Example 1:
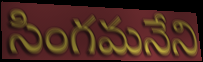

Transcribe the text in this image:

సింగమనేని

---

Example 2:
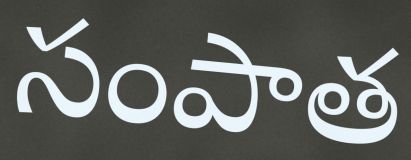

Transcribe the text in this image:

సంపాత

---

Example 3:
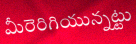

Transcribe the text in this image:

మీరెరిగియున్నట్టు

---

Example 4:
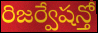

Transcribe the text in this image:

రిజర్వేషన్తో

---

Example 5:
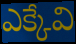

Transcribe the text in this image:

ఎక్కేవి